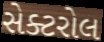
સેક્ટરોલ